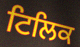
ਟਿਲਿਕ